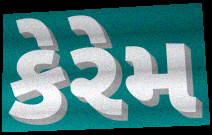
કેરેમ